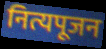
नित्यपूजन